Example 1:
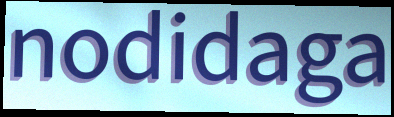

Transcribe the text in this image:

nodidaga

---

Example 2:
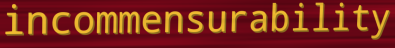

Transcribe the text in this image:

incommensurability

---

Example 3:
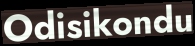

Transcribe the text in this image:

Odisikondu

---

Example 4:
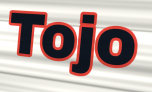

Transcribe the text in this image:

Tojo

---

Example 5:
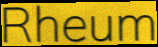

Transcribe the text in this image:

Rheum